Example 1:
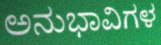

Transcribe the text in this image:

ಅನುಭಾವಿಗಳ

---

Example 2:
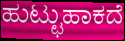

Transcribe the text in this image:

ಹುಟ್ಟುಹಾಕದೆ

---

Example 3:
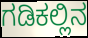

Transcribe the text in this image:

ಗಡಿಕಲ್ಲಿನ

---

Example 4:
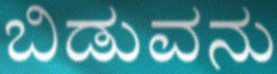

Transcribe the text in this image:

ಬಿಡುವನು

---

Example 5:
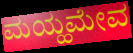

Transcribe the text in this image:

ಮಯ್ಹಮೇವ